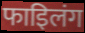
फाइिलंग